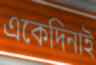
একেদিনাই